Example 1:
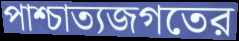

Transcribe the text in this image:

পাশ্চাত্যজগতের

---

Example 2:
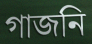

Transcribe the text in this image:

গাজনি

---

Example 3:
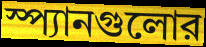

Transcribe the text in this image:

স্প্যানগুলোর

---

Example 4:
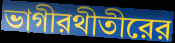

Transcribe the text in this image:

ভাগীরথীতীরের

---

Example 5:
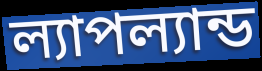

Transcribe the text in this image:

ল্যাপল্যান্ড